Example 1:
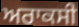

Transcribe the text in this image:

ਅਰਾਕਸੀ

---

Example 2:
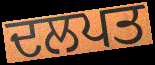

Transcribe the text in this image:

ਦਲਪਤ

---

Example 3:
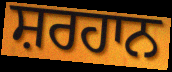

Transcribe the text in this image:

ਸ਼ਰਹਾਨ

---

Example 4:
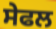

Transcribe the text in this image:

ਸੇਫਲ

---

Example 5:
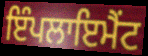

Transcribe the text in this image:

ਇੰਪਲਾਇਮੈਂਟ